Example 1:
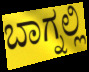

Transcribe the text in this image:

ಬಾಗ್ನಲ್ಲಿ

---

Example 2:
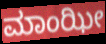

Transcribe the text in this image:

ಮಾಂಝೀ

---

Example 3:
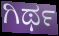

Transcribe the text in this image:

ಗಿರ್ಥ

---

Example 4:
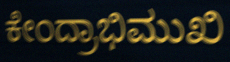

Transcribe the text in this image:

ಕೇಂದ್ರಾಭಿಮುಖಿ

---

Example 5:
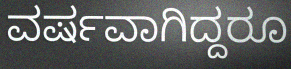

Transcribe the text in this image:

ವರ್ಷವಾಗಿದ್ದರೂ